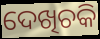
ଦେଖିଚକି